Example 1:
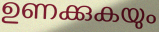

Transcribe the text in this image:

ഉണക്കുകയും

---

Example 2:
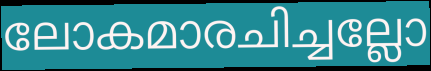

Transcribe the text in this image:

ലോകമാരചിച്ചല്ലോ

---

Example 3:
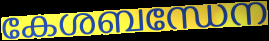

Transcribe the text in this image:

കേശബന്ധേന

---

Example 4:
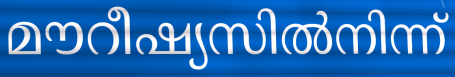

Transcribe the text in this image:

മൗറീഷ്യസിൽനിന്ന്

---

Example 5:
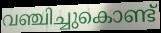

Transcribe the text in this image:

വഞ്ചിച്ചുകൊണ്ട്